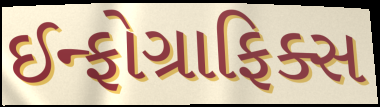
ઈન્ફોગ્રાફિક્સ